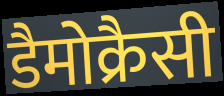
डैमोक्रैसी